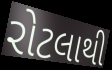
રોટલાથી